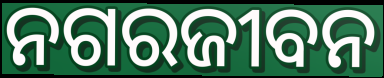
ନଗରଜୀବନ